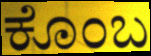
ಕೊಂಬ